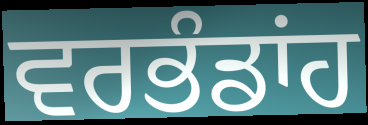
ਵਰਭੰਡਾਂਹ